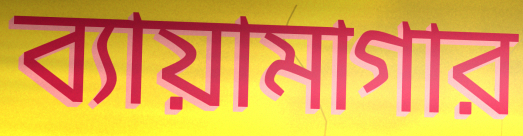
ব্যায়ামাগার